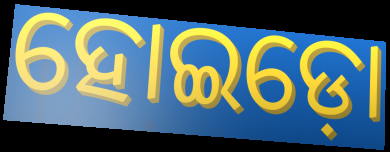
ହୋଇଡ଼ୋ